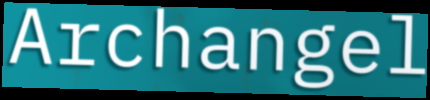
Archangel